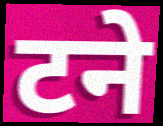
टने